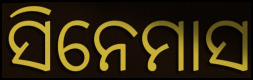
ସିନେମାସ